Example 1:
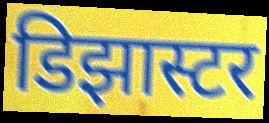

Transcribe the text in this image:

डिझास्टर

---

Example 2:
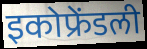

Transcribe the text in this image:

इकोफ्रेंडली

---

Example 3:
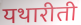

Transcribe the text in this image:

यथारीती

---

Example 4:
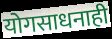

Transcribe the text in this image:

योगसाधनाही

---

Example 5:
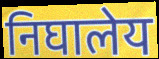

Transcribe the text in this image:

निघालेय